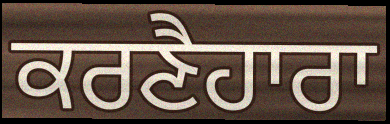
ਕਰਣੈਹਾਰਾ